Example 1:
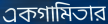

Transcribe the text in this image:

একগামিতার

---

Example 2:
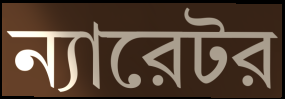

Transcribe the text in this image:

ন্যারেটর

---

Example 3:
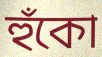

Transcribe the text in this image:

হুঁকো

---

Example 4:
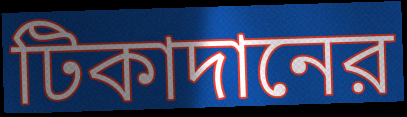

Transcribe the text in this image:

টিকাদানের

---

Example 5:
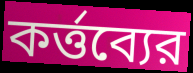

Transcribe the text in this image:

কর্ত্তব্যের